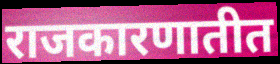
राजकारणातीत